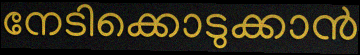
നേടിക്കൊടുക്കാൻ